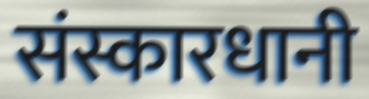
संस्कारधानी